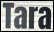
Tara